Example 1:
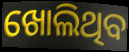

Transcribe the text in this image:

ଖୋଲିଥିବ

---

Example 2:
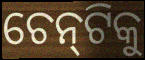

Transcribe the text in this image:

ଚେନ୍‌ଟିକୁ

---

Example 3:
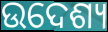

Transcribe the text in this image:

ଉଦେଶ୍ୟ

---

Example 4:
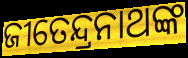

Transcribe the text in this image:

ଜୀତେନ୍ଦ୍ରନାଥଙ୍କ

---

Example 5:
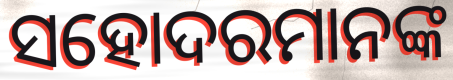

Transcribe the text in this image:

ସହୋଦରମାନଙ୍କ